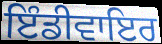
ਇੰਡੀਵਾਇਰ